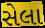
સેલા